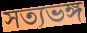
সত্যভঙ্গ